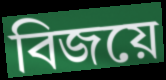
বিজয়ে